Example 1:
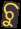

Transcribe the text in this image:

ଚୁ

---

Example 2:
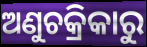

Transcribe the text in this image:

ଅଣୁଚକ୍ରିକାରୁ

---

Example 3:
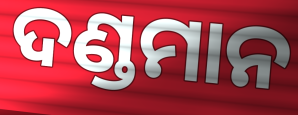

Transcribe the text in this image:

ଦଣ୍ଡମାନ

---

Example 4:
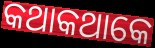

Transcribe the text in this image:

କଥାକଥାକେ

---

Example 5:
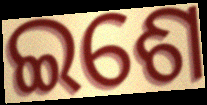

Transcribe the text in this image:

ଇଶେ